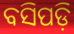
ବସିପଡ଼ି